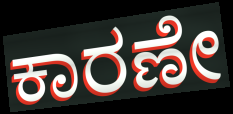
ಕಾರಣೇ